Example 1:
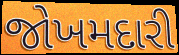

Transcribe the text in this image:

જોખમદારી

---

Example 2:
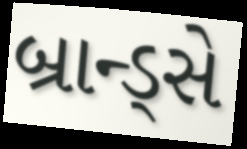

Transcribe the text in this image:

બ્રાન્ડ્સે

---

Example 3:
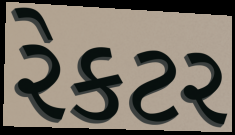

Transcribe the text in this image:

રેકટર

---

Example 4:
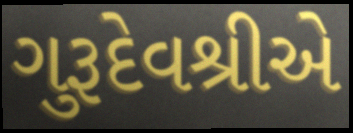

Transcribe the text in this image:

ગુરૂદેવશ્રીએ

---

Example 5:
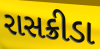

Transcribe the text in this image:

રાસક્રીડા